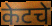
केटचे